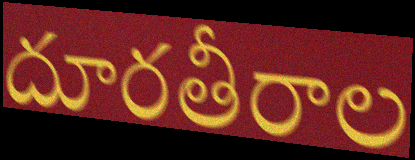
దూరతీరాల